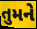
તુમને